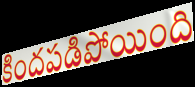
కిందపడిపోయింది